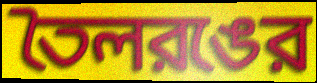
তৈলরঙের